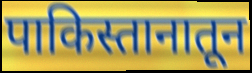
पाकिस्तानातून